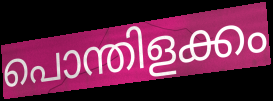
പൊന്തിളക്കം